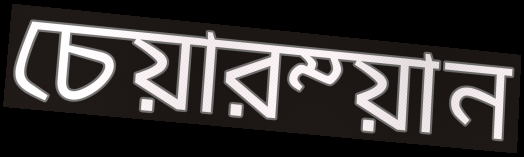
চেয়ারম্য়ান